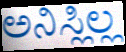
ಅನಿಸ್ಲಿಲ್ಲ